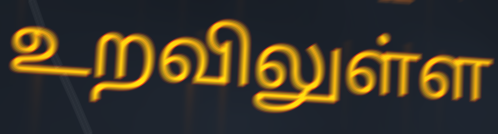
உறவிலுள்ள